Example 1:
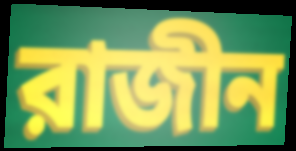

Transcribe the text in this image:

রাজীন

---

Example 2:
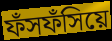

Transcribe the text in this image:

ফঁসফঁসিয়ে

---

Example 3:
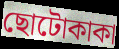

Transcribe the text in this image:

ছোটোকাকা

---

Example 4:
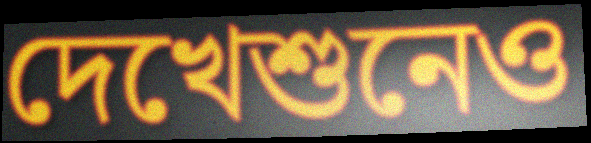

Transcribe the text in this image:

দেখেশুনেও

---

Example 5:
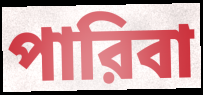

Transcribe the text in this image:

পারিবা